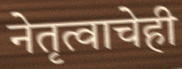
नेतृत्वाचेही